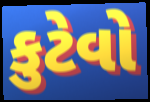
કુટેવો